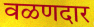
वळणदार